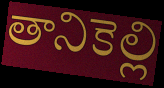
తానికెల్లి